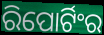
ରିପୋର୍ଟିଂର